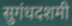
सुगंधदशमी